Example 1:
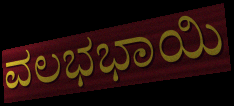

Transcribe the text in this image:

ವಲಭಭಾಯಿ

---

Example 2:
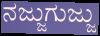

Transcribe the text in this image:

ನಜ್ಜುಗುಜ್ಜು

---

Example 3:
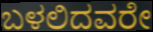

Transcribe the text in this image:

ಬಳಲಿದವರೇ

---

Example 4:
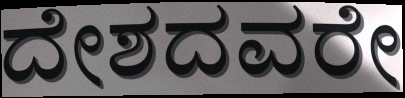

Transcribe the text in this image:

ದೇಶದವರೇ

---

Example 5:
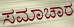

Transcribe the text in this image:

ಸಮಾಚಾರ